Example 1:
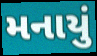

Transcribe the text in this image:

મનાયું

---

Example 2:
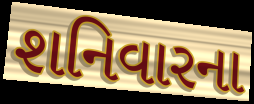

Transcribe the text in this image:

શનિવારના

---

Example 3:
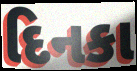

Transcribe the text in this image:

દિનકા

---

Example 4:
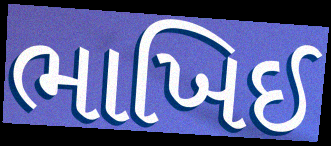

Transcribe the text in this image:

ભાખિઈ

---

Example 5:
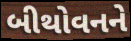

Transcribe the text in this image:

બીથોવનને